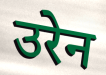
उरेन